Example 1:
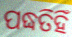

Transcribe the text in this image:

ପଦ୍ଧତିହିଁ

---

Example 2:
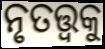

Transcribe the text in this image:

ନୃତତ୍ତ୍ଵକୁ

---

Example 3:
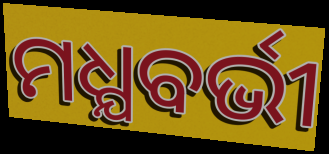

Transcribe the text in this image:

ମଧ୍ଯବର୍ଭୀ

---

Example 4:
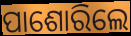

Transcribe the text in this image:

ପାଶୋରିଲେ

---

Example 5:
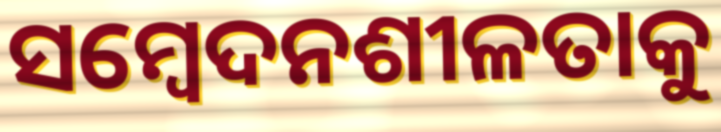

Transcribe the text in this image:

ସମ୍ବେଦନଶୀଳତାକୁ